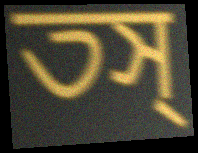
তস্